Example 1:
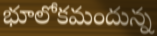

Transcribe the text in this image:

భూలోకమందున్న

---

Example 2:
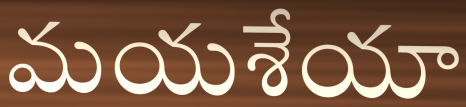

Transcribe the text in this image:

మయశేయా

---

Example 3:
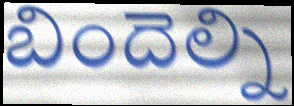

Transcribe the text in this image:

బిందెల్ని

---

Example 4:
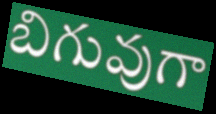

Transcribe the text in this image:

బిగువుగా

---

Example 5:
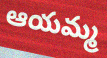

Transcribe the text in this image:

ఆయమ్మ